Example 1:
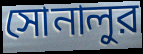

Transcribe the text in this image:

সোনালুর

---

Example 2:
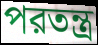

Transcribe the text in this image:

পরতন্ত্র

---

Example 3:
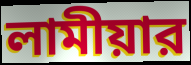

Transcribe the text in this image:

লামীয়ার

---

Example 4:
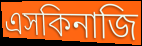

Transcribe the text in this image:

এসকিনাজি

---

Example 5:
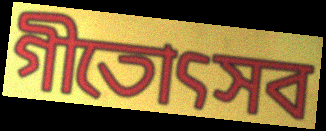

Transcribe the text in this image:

গীতোৎসব